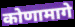
कोणामागे